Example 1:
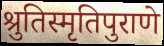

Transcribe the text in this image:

श्रुतिस्मृतिपुराणे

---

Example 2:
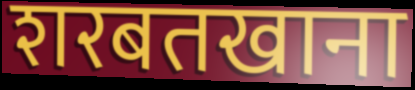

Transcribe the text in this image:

शरबतखाना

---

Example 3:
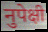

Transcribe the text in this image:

नुपेक्षी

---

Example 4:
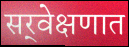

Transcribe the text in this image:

सर्वेक्षणात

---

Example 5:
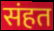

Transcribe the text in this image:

संहत